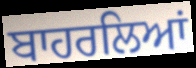
ਬਾਹਰਲਿਆਂ